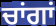
ਚਾਂਗਾਂ